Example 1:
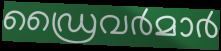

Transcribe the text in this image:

ഡ്രൈവർമാർ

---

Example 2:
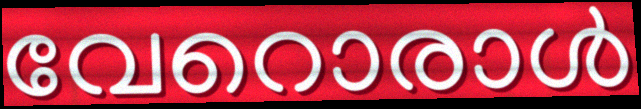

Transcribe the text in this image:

വേറൊരാൾ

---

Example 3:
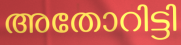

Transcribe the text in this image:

അതോറിട്ടി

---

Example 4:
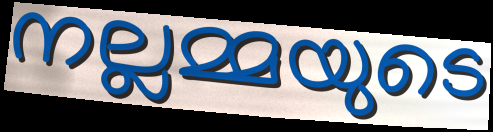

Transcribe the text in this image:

നല്ലമ്മയുടെ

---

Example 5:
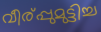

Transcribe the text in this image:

വീര്പ്പുമുട്ടിച്ച